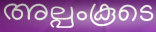
അല്പംകൂടെ